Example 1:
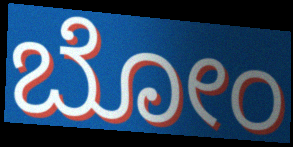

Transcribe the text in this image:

ಬೋಂ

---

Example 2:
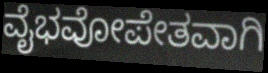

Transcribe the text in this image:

ವೈಭವೋಪೇತವಾಗಿ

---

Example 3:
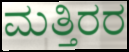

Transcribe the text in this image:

ಮತ್ತಿರರ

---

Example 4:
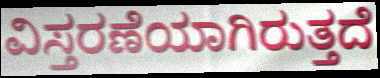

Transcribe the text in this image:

ವಿಸ್ತರಣೆಯಾಗಿರುತ್ತದೆ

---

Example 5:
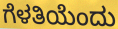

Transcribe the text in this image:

ಗೆಳತಿಯೆಂದು